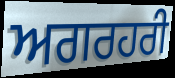
ਅਗਰਹਰੀ